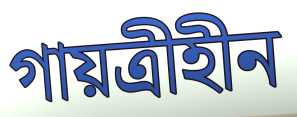
গায়ত্রীহীন